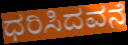
ಧರಿಸಿದವನೆ